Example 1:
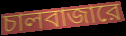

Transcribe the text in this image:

চালবাজারে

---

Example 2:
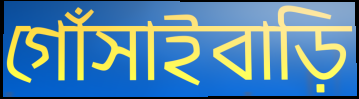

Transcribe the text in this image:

গোঁসাইবাড়ি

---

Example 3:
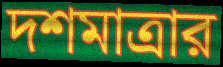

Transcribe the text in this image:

দশমাত্রার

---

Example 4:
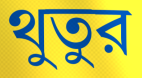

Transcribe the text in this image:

থুতুর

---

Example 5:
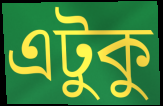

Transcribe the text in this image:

এটুকু